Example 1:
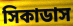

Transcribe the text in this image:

সিকাডাস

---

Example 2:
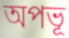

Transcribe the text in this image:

অপভূ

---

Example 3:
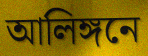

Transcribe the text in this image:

আলিঙ্গনে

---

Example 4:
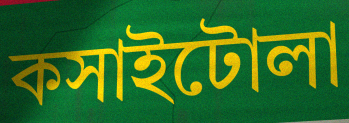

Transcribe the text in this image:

কসাইটোলা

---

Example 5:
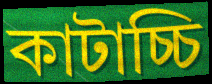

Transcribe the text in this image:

কাটাচ্চি